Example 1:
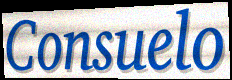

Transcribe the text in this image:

Consuelo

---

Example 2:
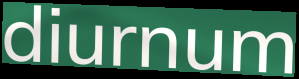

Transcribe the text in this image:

diurnum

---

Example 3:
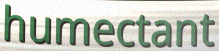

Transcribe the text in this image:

humectant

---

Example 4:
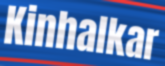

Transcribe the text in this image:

Kinhalkar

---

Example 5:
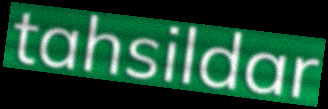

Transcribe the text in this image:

tahsildar